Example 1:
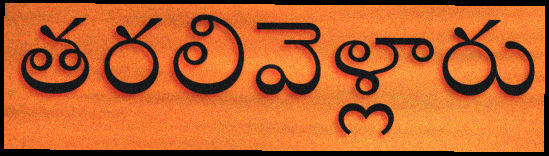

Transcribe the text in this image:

తరలివెళ్లారు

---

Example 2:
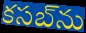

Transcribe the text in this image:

కసబ్‌ను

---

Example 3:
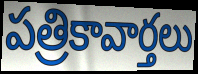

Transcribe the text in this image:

పత్రికావార్తలు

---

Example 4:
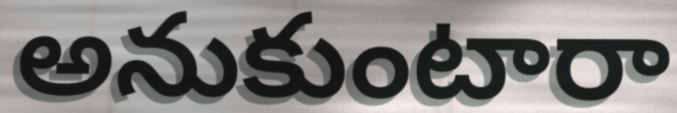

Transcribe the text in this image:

అనుకుంటారా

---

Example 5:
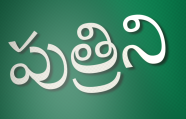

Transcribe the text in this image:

పుత్రిని